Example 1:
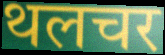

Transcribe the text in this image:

थलचर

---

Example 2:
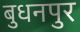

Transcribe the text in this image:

बुधनपुर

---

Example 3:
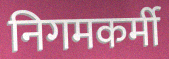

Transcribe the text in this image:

निगमकर्मी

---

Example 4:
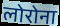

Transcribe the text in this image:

लोरोना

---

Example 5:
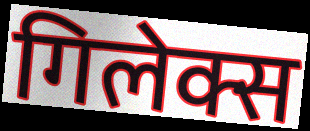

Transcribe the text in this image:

गिलेक्स